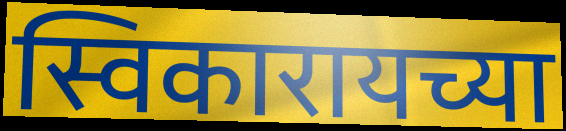
स्विकारायच्या